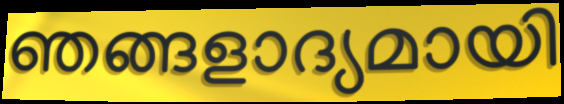
ഞങ്ങളാദ്യമായി